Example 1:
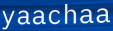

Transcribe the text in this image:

yaachaa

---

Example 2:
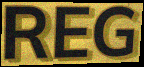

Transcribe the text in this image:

REG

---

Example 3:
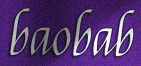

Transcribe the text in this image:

baobab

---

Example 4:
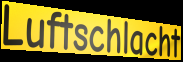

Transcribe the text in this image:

Luftschlacht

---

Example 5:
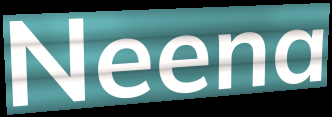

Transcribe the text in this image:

Neena